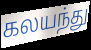
கலயந்து